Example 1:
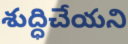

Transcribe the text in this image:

శుద్ధిచేయని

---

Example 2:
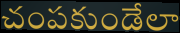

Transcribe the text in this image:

చంపకుండేలా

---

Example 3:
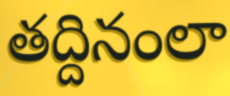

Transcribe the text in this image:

తద్దినంలా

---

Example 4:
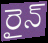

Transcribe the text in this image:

రైన్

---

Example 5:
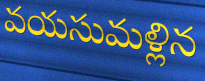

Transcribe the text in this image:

వయసుమళ్లిన